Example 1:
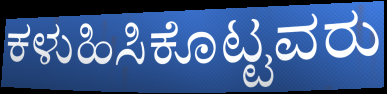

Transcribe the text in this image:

ಕಳುಹಿಸಿಕೊಟ್ಟವರು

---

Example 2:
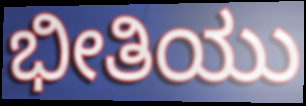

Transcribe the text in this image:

ಭೀತಿಯು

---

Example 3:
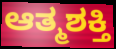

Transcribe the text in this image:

ಆತ್ಮಶಕ್ತಿ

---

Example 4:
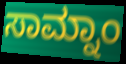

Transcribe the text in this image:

ಸಾಮ್ನಾಂ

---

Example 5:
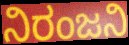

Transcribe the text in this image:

ನಿರಂಜನಿ